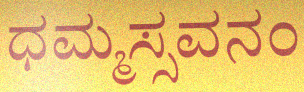
ಧಮ್ಮಸ್ಸವನಂ